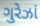
ગુરેઝાં